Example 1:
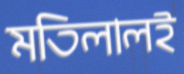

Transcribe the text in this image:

মতিলালই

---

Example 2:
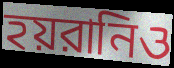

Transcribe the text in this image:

হয়রানিও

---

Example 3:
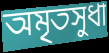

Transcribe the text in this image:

অমৃতসুধা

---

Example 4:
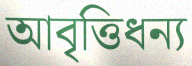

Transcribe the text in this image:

আবৃত্তিধন্য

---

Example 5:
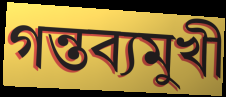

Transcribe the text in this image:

গন্তব্যমুখী